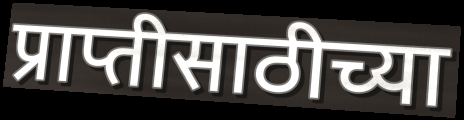
प्राप्तीसाठीच्या